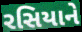
રસિયાને